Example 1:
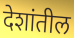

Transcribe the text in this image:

देशांतील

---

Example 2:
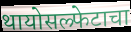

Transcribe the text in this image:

थायोसल्फेटाचा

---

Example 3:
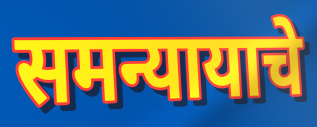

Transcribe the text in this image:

समन्यायाचे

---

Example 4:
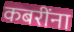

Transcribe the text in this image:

कबरींना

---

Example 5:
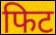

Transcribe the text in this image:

फिट